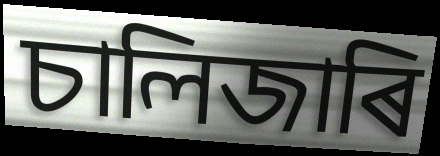
চালিজাৰি